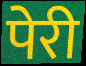
पेरी